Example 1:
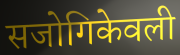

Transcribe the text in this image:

सजोगिकेवली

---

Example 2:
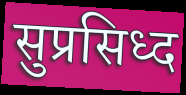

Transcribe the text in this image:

सुप्रसिध्द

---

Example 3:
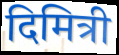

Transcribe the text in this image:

दिमित्री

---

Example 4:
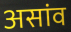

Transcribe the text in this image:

असांव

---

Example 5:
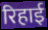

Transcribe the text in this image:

रिहाई